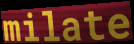
milate